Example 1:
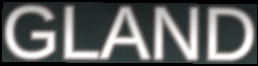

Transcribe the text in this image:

GLAND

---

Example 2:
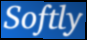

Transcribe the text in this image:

Softly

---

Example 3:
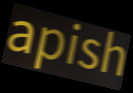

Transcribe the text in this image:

apish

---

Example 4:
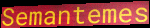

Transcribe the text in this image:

Semantemes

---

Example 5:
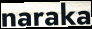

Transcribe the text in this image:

naraka